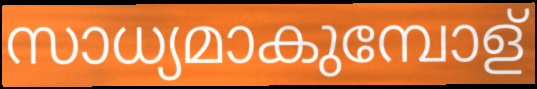
സാധ്യമാകുമ്പോള്